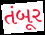
તંબૂર